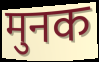
मुनक